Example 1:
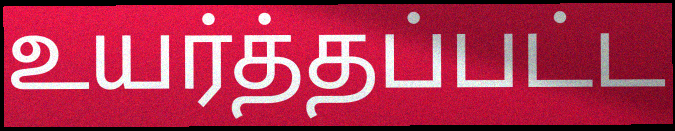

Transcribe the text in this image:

உயர்த்தப்பட்ட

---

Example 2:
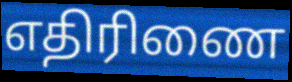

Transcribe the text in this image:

எதிரிணை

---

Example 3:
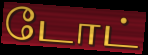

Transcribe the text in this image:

டோட்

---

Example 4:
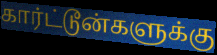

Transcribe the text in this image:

கார்ட்டூன்களுக்கு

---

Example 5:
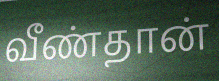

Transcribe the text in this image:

வீண்தான்